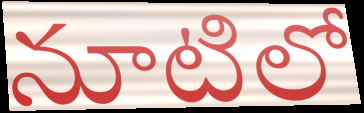
నూటిలో